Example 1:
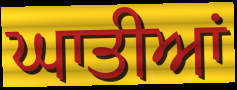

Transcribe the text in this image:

ਘਾਤੀਆਂ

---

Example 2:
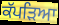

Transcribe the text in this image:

ਕੱਪੜਿਆ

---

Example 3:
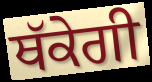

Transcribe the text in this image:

ਥੱਕੇਗੀ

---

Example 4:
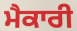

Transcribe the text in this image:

ਮੈਕਾਰੀ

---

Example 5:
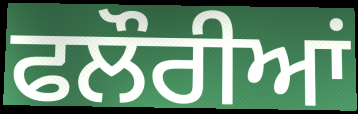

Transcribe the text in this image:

ਫਲੌਰੀਆਂ